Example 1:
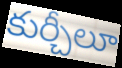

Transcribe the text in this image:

కుర్చీలూ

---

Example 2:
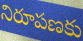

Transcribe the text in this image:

నిరూపణకు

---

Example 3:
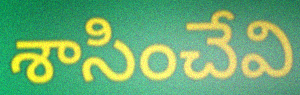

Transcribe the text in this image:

శాసించేవి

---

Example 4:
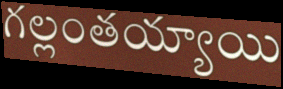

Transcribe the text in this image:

గల్లంతయ్యాయి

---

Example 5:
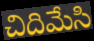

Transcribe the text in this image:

చిదిమేసి